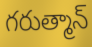
గరుత్మాన్